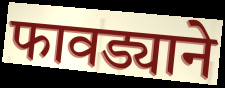
फावड्याने